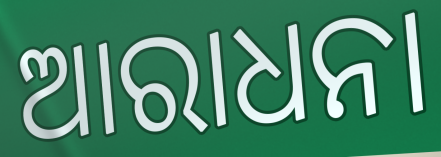
ଆରାଧନା